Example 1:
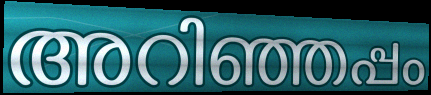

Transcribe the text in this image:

അറിഞ്ഞപ്പം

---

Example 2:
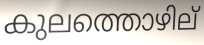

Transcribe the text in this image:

കുലത്തൊഴില്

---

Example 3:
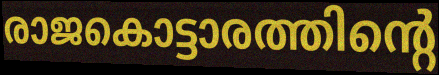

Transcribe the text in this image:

രാജകൊട്ടാരത്തിന്റെ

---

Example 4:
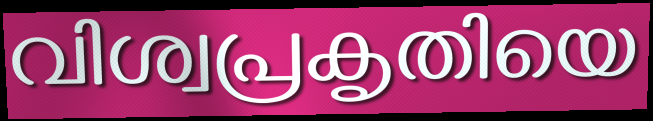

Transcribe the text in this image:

വിശ്വപ്രകൃതിയെ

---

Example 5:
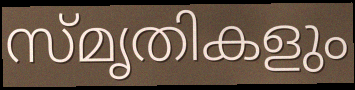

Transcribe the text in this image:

സ്മൃതികളും